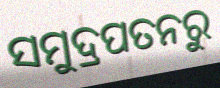
ସମୁଦ୍ରପତନରୁ